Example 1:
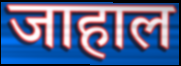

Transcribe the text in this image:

जाहाल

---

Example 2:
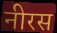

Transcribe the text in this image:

नीरस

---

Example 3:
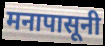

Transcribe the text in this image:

मनापासूनी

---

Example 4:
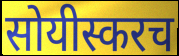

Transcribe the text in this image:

सोयीस्करच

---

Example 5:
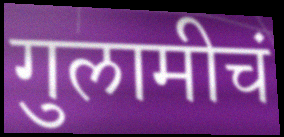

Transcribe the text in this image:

गुलामीचं